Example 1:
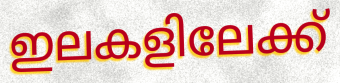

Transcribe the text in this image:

ഇലകളിലേക്ക്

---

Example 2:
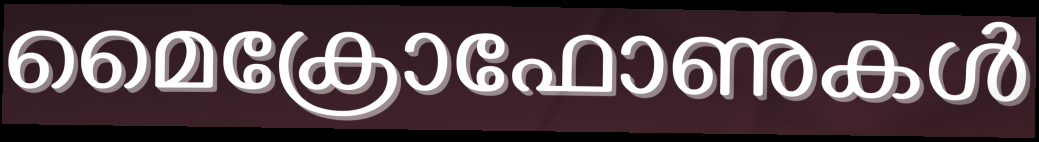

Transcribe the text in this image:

മൈക്രോഫോണുകൾ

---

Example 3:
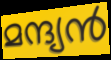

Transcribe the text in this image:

മന്ദ്യൻ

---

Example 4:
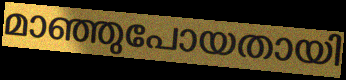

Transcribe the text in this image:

മാഞ്ഞുപോയതായി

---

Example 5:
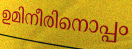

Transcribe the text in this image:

ഉമിനീരിനൊപ്പം